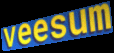
veesum